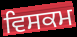
ਵਿਸਕਮ